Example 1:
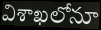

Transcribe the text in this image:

విశాఖలోనూ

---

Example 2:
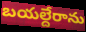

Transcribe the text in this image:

బయల్దేరాను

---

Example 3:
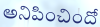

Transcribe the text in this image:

అనిపించిందో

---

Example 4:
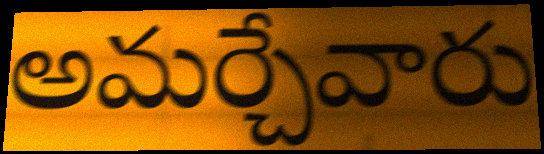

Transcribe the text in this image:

అమర్చేవారు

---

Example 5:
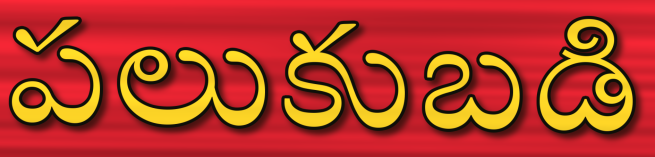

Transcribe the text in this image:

పలుకుబడి